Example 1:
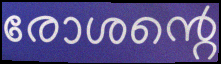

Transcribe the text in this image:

രോശന്റെ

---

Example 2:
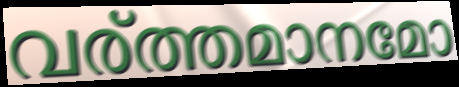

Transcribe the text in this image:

വര്ത്തമാനമോ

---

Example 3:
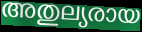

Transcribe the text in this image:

അതുല്യരായ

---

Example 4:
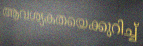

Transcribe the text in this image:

ആവശ്യകതയെക്കുറിച്ച്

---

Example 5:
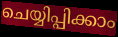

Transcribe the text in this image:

ചെയ്യിപ്പിക്കാം